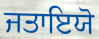
ਜਤਾਇਯੋ